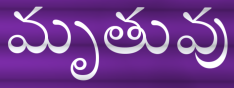
మృతువు